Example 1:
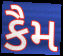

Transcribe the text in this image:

કૈમ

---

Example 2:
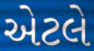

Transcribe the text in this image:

એટલે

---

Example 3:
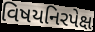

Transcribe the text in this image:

વિષયનિરપેક્ષ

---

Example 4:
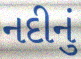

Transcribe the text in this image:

નદીનું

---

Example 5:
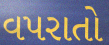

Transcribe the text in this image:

વપરાતો